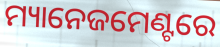
ମ୍ୟାନେଜମେଣ୍ଟରେ